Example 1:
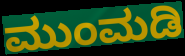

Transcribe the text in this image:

ಮುಂಮಡಿ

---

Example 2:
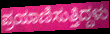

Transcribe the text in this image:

ಪ್ರಯಾಣಿಸುತ್ತಿದ್ದಳು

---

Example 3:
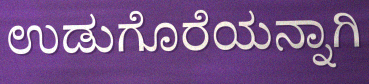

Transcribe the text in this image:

ಉಡುಗೊರೆಯನ್ನಾಗಿ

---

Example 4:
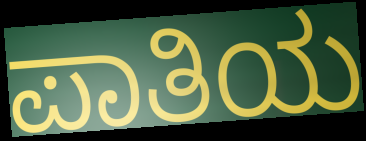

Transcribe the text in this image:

ಪಾತಿಯ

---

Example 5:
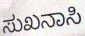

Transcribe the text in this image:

ಸುಖನಾಸಿ